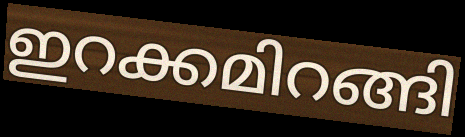
ഇറക്കമിറങ്ങി